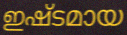
ഇഷ്ടമായ